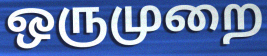
ஒருமுறை